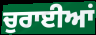
ਚੁਰਾਈਆਂ